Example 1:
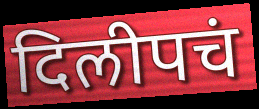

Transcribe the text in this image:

दिलीपचं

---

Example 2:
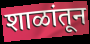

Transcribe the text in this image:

शाळांतून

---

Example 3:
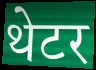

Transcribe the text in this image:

थेटर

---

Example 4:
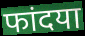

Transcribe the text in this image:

फांदया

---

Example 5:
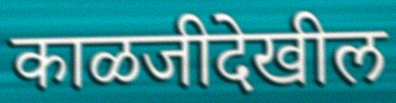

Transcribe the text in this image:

काळजीदेखील